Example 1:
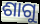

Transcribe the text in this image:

ଶାଗୁ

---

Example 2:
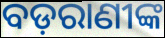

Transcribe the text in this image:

ବଡ଼ରାଣୀଙ୍କ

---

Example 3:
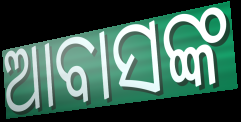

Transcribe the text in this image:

ଆବାସଙ୍କ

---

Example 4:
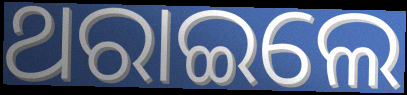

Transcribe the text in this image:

ଥରାଇଲେ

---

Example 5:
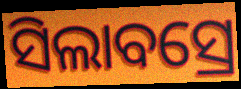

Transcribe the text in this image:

ସିଲାବସ୍ରେ